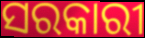
ସରକାରୀ